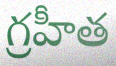
గ్రహీత